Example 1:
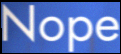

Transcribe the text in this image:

Nope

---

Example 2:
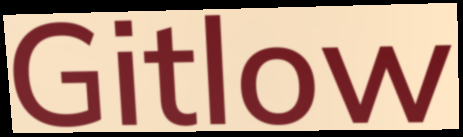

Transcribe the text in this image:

Gitlow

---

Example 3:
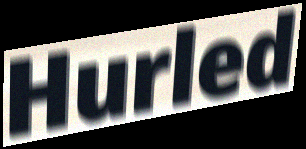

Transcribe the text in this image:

Hurled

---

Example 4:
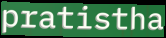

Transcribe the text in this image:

pratistha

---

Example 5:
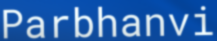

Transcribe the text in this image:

Parbhanvi